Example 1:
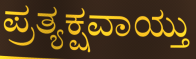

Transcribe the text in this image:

ಪ್ರತ್ಯಕ್ಷವಾಯ್ತು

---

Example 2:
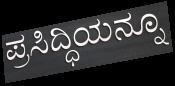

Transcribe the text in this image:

ಪ್ರಸಿದ್ಧಿಯನ್ನೂ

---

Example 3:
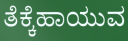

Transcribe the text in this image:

ತೆಕ್ಕೆಹಾಯುವ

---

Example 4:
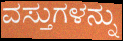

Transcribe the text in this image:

ವಸ್ತುಗಳನ್ನು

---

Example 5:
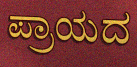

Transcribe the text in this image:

ಪ್ರಾಯದ